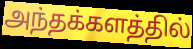
அந்தக்களத்தில்